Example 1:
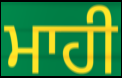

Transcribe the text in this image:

ਮਾਹੀ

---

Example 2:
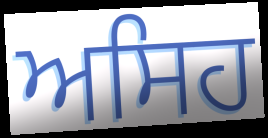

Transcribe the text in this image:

ਅਸਿਹ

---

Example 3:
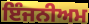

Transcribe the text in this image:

ਇੰਜਨੀਅਮ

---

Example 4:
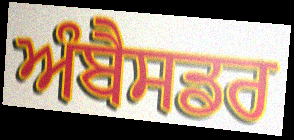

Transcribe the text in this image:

ਅੰਬੈਸਡਰ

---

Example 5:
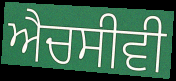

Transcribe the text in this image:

ਐਚਸੀਵੀ